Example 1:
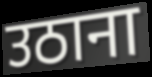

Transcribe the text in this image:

उठाना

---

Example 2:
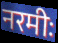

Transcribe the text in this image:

नरमीः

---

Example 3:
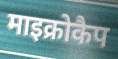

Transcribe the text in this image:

माइक्रोकैप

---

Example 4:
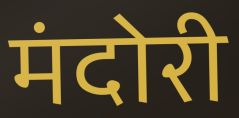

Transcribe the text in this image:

मंदोरी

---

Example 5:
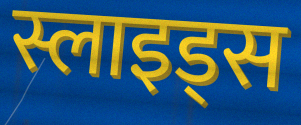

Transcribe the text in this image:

स्लाइड्स